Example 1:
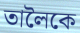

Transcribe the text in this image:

তালৈকে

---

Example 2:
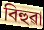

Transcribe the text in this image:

বিহুৱা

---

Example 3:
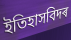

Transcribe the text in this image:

ইতিহাসবিদৰ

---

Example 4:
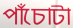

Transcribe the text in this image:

পাঁচোটা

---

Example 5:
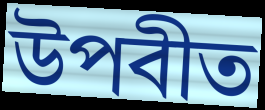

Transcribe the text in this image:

উপবীত